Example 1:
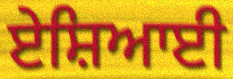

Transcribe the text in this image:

ਏਸ਼ਿਆਈ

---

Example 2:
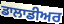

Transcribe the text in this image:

ਡਾਲਾਡੀਅਰ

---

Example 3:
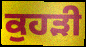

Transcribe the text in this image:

ਕੁਹੜੀ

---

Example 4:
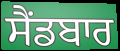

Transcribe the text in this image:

ਸੈਂਡਬਾਰ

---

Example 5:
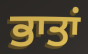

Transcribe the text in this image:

ਭਾਤਾਂ